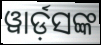
ୱାର୍ଡ଼ସଙ୍କ